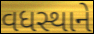
વધસ્થાને